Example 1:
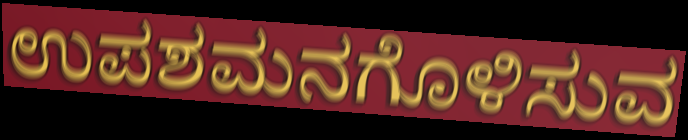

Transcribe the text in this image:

ಉಪಶಮನಗೊಳಿಸುವ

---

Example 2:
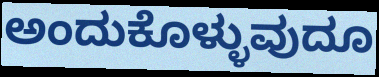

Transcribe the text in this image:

ಅಂದುಕೊಳ್ಳುವುದೂ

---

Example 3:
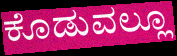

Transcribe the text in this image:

ಕೊಡುವಲ್ಲೂ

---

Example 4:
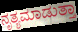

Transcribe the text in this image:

ನೃತ್ಯಮಾಡುತ್ತಾ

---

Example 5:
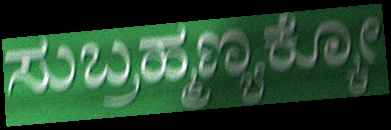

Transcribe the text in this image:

ಸುಬ್ರಹ್ಮಣ್ಯಕ್ಕೋ